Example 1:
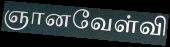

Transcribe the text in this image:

ஞானவேள்வி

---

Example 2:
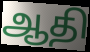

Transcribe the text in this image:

ஆதி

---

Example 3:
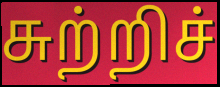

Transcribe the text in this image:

சுற்றிச்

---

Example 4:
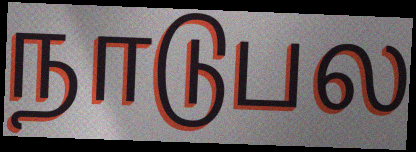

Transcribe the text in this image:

நாடுபல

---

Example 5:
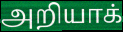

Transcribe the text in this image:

அறியாக்